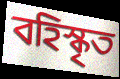
বহিস্কৃত